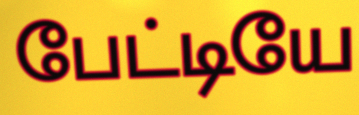
பேட்டியே